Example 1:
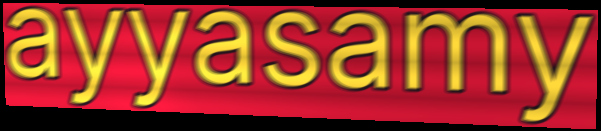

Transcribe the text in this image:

ayyasamy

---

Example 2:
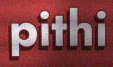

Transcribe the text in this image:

pithi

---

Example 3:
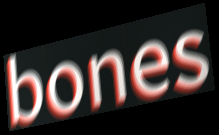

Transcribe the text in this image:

bones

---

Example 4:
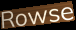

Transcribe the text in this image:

Rowse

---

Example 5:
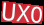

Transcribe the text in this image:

UXO